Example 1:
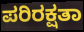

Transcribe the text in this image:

ಪರಿರಕ್ಷತಾ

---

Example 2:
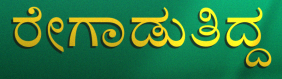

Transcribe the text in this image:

ರೇಗಾಡುತಿದ್ದ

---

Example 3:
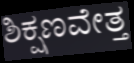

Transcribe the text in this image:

ಶಿಕ್ಷಣವೇತ್ತ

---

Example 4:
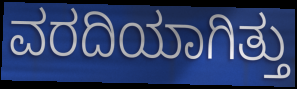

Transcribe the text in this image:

ವರದಿಯಾಗಿತ್ತು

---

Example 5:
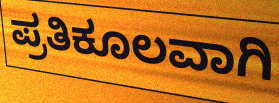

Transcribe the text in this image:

ಪ್ರತಿಕೂಲವಾಗಿ